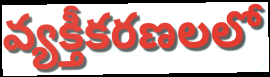
వ్యక్తీకరణలలో